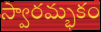
స్వారమ్భకం